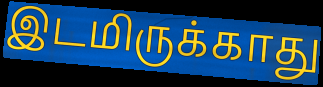
இடமிருக்காது